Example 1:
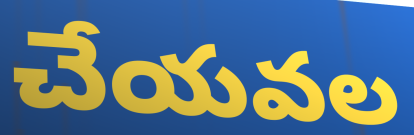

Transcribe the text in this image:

చేయవల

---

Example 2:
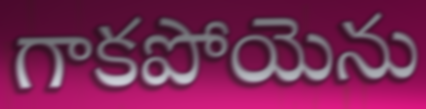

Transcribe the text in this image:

గాకపోయెను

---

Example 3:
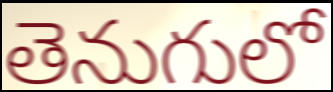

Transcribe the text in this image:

తెనుగులో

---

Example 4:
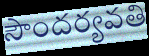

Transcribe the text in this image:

సౌందర్యవతి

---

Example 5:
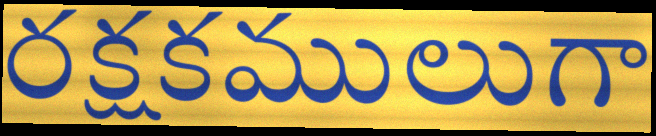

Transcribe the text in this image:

రక్షకములుగా